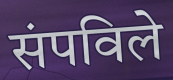
संपविले